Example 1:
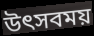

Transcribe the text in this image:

উৎসবময়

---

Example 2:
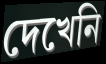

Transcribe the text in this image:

দেখেনি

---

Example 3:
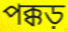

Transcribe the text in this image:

পক্কড়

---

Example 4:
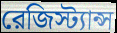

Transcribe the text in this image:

রেজিস্ট্যান্স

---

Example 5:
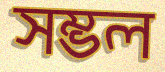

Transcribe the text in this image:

সম্ভল